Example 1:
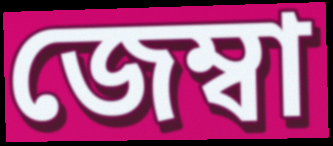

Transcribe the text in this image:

জেম্বা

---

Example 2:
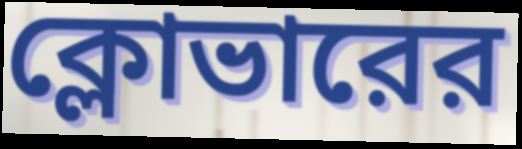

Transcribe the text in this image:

ক্লোভারের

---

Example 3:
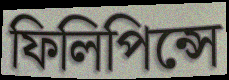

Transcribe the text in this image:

ফিলিপিন্সে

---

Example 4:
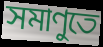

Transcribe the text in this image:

সমাণুতে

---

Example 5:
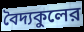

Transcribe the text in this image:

বৈদ্যকুলের